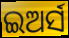
ଇଅର୍ସ